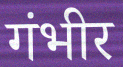
गंभीर